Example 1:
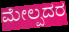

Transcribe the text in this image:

ಮೇಲ್ಪದರ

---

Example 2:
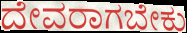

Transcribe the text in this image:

ದೇವರಾಗಬೇಕು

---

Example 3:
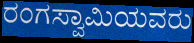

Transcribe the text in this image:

ರಂಗಸ್ವಾಮಿಯವರು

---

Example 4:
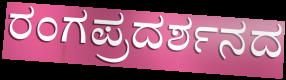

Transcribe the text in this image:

ರಂಗಪ್ರದರ್ಶನದ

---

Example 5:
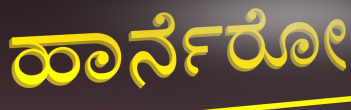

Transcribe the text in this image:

ಹಾರ್ನೆರೋ